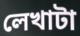
লেখাটা